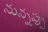
నున్నప్పు